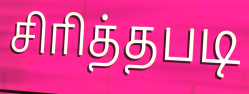
சிரித்தபடி